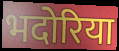
भदोरिया